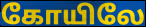
கோயிலே